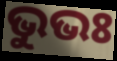
ଭୁଭଃ